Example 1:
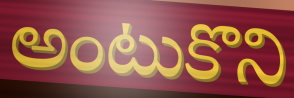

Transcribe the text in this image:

అంటుకొని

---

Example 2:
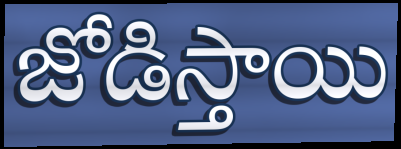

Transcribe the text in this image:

జోడిస్తాయి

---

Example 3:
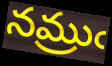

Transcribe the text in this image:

నమ్రుఁ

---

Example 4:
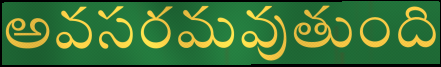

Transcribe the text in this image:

అవసరమవుతుంది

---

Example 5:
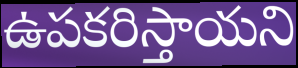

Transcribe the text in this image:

ఉపకరిస్తాయని